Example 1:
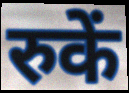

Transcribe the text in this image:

रुकें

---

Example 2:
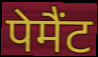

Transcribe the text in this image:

पेमैंट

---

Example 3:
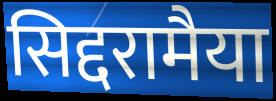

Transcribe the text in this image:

सिद्दरामैया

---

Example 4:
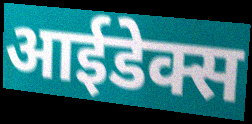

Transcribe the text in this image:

आईडेक्स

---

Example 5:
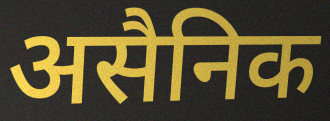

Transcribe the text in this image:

असैनिक